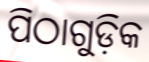
ପିଠାଗୁଡ଼ିକ